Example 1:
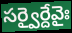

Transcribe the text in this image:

సర్వైర్దేవైః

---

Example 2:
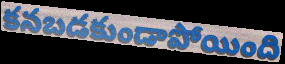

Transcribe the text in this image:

కనబడకుండాపోయింది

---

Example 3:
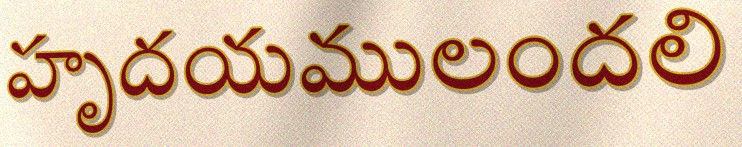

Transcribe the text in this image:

హృదయములందలి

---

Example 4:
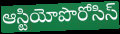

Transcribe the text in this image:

ఆస్టియోపొరోసిస్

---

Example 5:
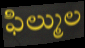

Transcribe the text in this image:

ఫిల్ముల